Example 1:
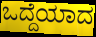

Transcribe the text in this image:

ಒದ್ದೆಯಾದ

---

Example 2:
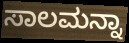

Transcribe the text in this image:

ಸಾಲಮನ್ನಾ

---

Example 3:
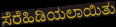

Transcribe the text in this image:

ಸೆರೆಹಿಡಿಯಲಾಯಿತು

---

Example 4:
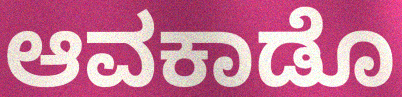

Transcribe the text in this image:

ಆವಕಾಡೊ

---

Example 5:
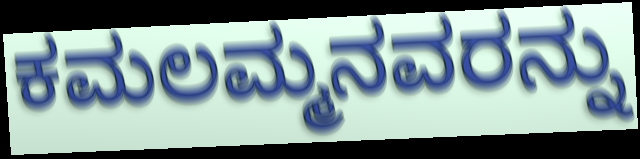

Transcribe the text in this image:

ಕಮಲಮ್ಮನವರನ್ನು